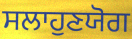
ਸਲਾਹੁਣਯੋਗ